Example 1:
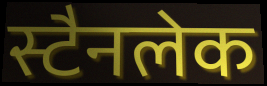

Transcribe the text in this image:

स्टैनलेक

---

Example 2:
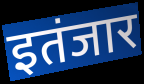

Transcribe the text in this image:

इतंजार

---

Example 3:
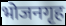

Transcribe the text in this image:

भोजनगृह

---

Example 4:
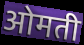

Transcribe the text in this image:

ओमती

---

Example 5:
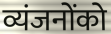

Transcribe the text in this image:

व्यंजनोंको